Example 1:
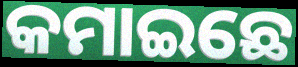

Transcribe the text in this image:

କମାଇଛେ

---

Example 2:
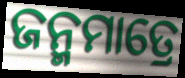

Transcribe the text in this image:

ଜନ୍ମମାତ୍ରେ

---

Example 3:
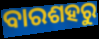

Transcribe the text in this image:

ବାରଶହରୁ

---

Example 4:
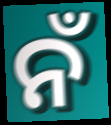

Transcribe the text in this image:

ନଁ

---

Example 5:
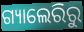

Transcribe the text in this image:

ଗ୍ୟାଲେରିରୁ